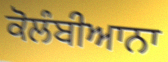
ਕੋਲੰਬੀਆਨਾ